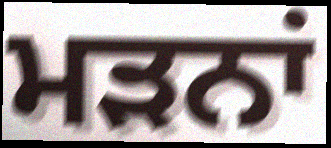
ਮੜਨਾਂ